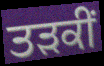
ਤੜਕੀਂ